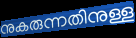
നുകരുന്നതിനുള്ള